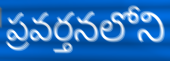
ప్రవర్తనలోని